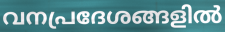
വനപ്രദേശങ്ങളിൽ